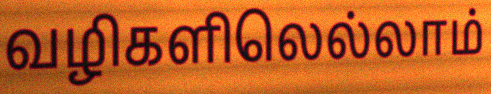
வழிகளிலெல்லாம்